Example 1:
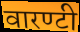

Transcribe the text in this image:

वारण्टी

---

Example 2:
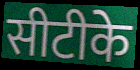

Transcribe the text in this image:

सीटीके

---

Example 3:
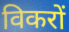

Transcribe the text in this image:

विकरों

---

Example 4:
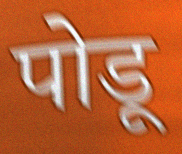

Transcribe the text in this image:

पोडू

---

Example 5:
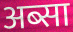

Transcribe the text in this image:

अब्सा